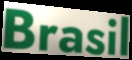
Brasil